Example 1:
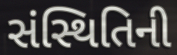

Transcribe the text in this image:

સંસ્થિતિની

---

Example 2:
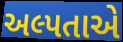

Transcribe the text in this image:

અલ્પતાએ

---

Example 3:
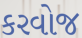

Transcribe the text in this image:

કરવોજ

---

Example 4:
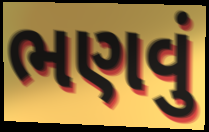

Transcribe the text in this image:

ભણવું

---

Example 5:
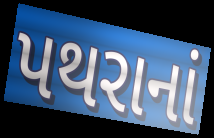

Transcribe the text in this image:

પથરાનાં